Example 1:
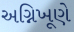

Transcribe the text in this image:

અગ્નિખૂણે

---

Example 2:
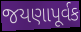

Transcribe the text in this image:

જયણાપૂર્વક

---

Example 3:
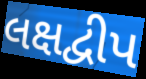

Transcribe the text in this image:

લક્ષદ્વીપ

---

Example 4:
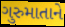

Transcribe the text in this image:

ગુરુમાતાને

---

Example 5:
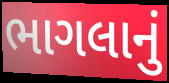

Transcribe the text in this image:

ભાગલાનું